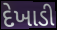
દેખાડી